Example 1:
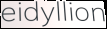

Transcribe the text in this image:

eidyllion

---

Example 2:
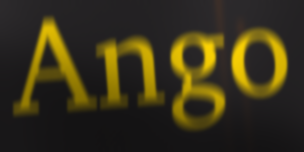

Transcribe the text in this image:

Ango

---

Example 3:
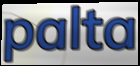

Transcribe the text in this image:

palta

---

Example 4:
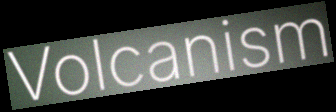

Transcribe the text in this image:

Volcanism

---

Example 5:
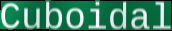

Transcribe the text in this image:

Cuboidal